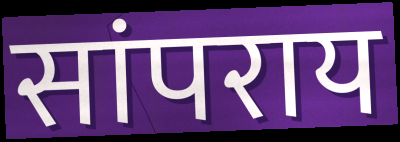
सांपराय